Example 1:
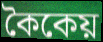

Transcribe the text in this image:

কৈকেয়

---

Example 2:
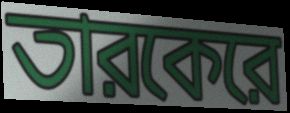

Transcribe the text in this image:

তারকেরে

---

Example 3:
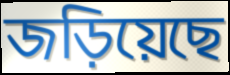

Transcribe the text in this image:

জড়িয়েছে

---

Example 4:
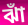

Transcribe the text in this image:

ঝাঁ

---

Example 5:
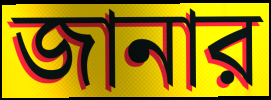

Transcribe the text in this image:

জানার